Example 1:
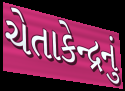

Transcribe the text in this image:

ચેતાકેન્દ્રનું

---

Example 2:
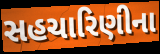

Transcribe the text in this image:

સહચારિણીના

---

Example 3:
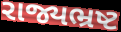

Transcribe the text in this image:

રાજ્યભ્રષ્ટ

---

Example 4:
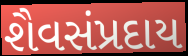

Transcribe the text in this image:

શૈવસંપ્રદાય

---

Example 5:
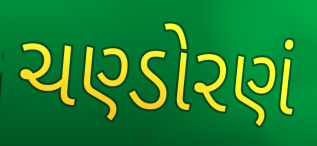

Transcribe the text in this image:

ચણ્ડોરણં